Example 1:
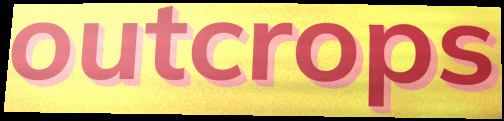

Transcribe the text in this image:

outcrops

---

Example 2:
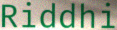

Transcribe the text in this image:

Riddhi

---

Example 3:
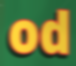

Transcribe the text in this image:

od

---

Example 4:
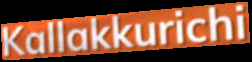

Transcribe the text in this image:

Kallakkurichi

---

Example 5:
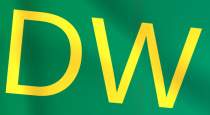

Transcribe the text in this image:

DW